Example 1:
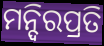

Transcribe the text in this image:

ମନ୍ଦିରପ୍ରତି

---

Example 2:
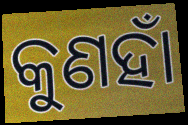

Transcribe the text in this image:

କୁଣହାଁ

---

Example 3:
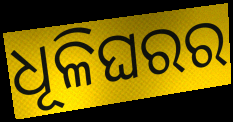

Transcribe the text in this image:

ଧୂଳିଘରର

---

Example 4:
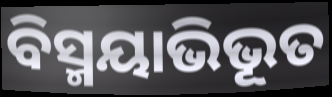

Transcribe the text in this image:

ବିସ୍ମୟାଭିଭୂତ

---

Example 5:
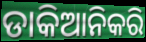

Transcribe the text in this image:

ଡାକିଆନିକରି